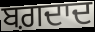
ਬ਼ਗਦਾਦ